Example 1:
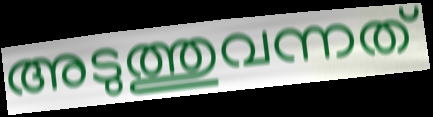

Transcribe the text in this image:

അടുത്തുവന്നത്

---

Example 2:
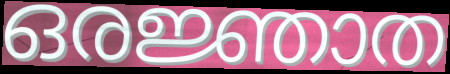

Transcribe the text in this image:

ഒരജ്ഞാത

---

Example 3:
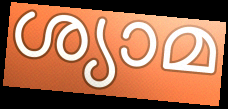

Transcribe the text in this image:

ശ്യാമ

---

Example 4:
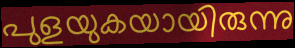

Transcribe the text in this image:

പുളയുകയായിരുന്നു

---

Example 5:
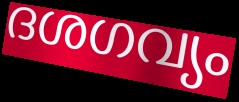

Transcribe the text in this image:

ദശഗവ്യം